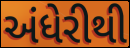
અંધેરીથી